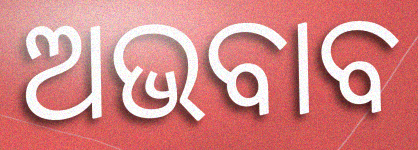
ଅଭବାବ